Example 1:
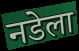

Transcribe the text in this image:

नडेला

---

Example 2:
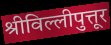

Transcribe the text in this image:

श्रीविल्लीपुत्तूर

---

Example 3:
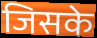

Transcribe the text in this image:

जिसके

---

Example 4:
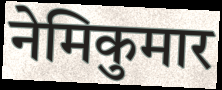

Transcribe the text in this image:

नेमिकुमार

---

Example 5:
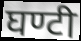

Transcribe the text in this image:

घण्टी